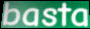
basta